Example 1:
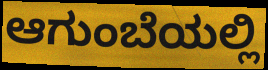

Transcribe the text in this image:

ಆಗುಂಬೆಯಲ್ಲಿ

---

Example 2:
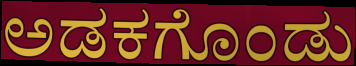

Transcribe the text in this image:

ಅಡಕಗೊಂಡು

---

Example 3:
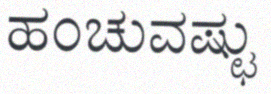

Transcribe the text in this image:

ಹಂಚುವಷ್ಟು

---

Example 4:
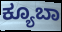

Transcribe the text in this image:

ಕ್ಯೂಬಾ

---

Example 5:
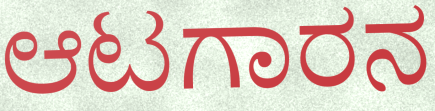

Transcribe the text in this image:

ಆಟಗಾರನ